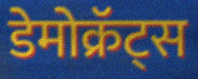
डेमोक्रॅट्स